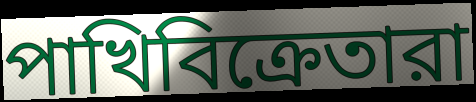
পাখিবিক্রেতারা